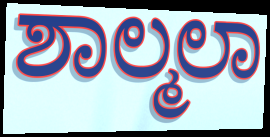
ಶಾಲ್ಮಲಾ